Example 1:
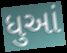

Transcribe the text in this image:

ધુઆં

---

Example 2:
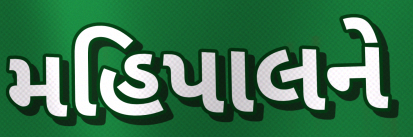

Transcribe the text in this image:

મહિપાલને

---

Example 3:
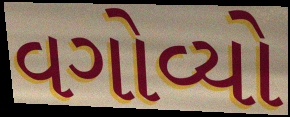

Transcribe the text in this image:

વગોવ્યો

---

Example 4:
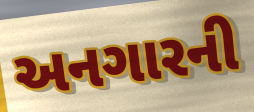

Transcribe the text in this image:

અનગારની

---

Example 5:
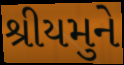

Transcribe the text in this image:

શ્રીયમુને